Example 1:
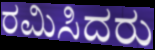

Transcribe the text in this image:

ರಮಿಸಿದರು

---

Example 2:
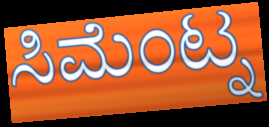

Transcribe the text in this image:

ಸಿಮೆಂಟ್ನ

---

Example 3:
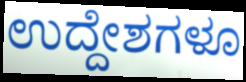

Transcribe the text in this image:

ಉದ್ದೇಶಗಳೂ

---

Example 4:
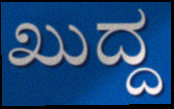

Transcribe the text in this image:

ಖುದ್ದ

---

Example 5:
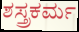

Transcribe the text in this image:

ಶಸ್ತ್ರಕರ್ಮ